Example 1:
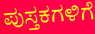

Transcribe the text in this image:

ಪುಸ್ತಕಗಳಿಗೆ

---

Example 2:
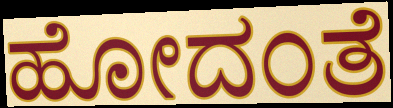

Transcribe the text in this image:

ಹೋದಂತೆ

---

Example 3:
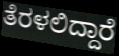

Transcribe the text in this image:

ತೆರಳಲಿದ್ದಾರೆ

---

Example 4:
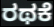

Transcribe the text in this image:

ರಥಕೆ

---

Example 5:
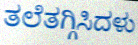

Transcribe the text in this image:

ತಲೆತಗ್ಗಿಸಿದಳು